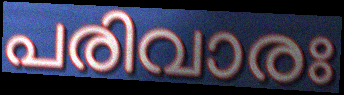
പരിവാരഃ